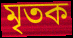
মৃতক